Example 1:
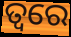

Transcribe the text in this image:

ତ୍ଵରେ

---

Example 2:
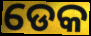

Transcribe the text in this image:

ଡେକ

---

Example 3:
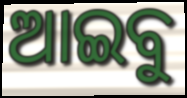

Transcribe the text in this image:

ଆଇବୁ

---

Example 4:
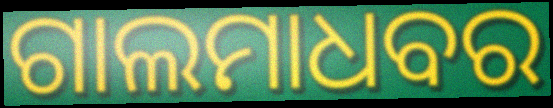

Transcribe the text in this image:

ଗାଲମାଧବର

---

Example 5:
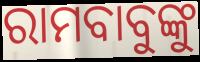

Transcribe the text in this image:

ରାମବାବୁଙ୍କୁ